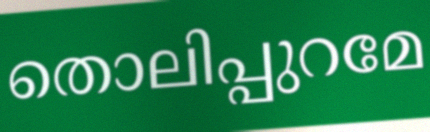
തൊലിപ്പുറമേ